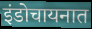
इंडोचायनात